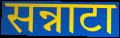
सन्नाटा